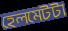
হেলমেটটা